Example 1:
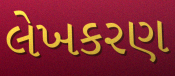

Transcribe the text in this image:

લેખકરણ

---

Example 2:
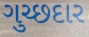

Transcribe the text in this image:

ગુચ્છદાર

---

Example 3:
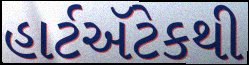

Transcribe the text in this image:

હાર્ટઍટેકથી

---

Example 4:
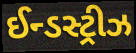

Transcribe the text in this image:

ઈન્ડસ્ટ્રીઝ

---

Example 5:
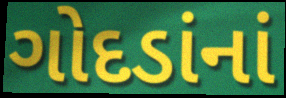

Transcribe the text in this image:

ગોદડાંનાં